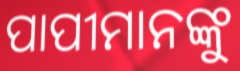
ପାପୀମାନଙ୍କୁ